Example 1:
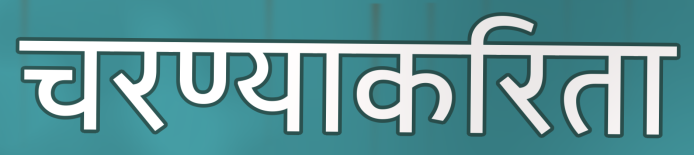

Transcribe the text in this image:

चरण्याकरिता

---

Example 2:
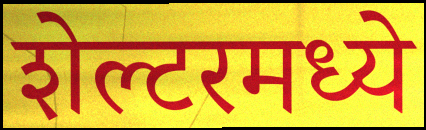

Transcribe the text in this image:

शेल्टरमध्ये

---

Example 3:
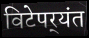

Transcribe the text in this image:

विटेपर्यंत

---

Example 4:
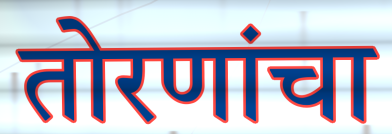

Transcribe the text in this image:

तोरणांचा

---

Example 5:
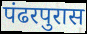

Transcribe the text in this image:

पंढरपुरास